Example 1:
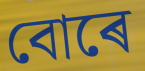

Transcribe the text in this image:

বোৰে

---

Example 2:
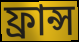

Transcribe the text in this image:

ফ্ৰান্স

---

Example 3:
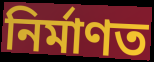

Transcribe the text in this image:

নিৰ্মাণত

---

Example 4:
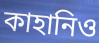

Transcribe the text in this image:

কাহানিও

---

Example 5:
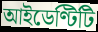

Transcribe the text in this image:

আইডেণ্টিটি